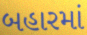
બહારમાં